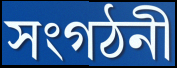
সংগঠনী